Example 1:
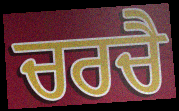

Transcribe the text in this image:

ਚਰਚੈ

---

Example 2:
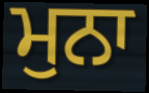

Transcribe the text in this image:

ਮੁਨਾ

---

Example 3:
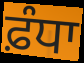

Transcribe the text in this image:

ਫ਼ੰਧਾ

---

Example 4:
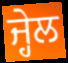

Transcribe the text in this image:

ਜ੍ਹੇਲ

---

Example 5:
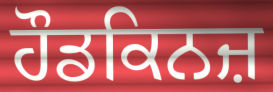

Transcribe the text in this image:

ਹੌਡਕਿਨਜ਼